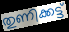
തുണിക്കട്ട്